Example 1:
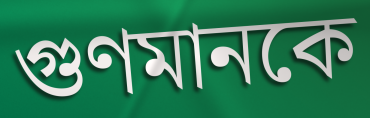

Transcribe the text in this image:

গুণমানকে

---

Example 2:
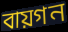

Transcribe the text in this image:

বায়গন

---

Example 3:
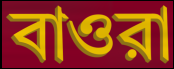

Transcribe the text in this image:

বাওরা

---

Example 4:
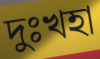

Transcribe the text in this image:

দুঃখহা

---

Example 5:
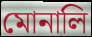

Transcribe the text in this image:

মোনালি